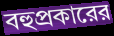
বহুপ্রকারের